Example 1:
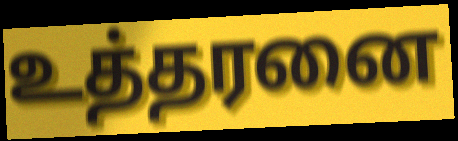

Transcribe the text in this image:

உத்தரனை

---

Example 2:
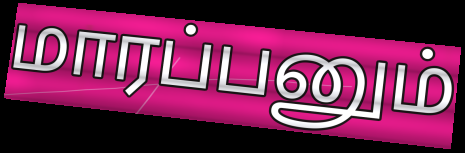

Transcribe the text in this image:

மாரப்பனும்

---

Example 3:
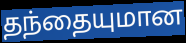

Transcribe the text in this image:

தந்தையுமான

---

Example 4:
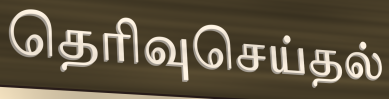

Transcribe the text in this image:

தெரிவுசெய்தல்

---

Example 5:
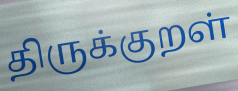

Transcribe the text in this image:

திருக்குறள்